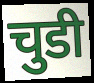
चुडी